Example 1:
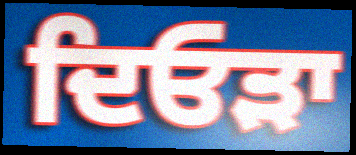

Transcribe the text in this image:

ਦਿਓੜਾ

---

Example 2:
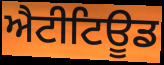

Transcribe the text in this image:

ਐਟੀਟਿਊਡ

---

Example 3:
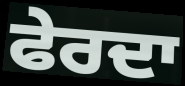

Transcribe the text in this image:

ਫੇਰਦਾ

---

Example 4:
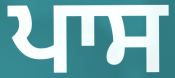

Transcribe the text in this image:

ਪਾਸ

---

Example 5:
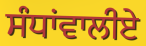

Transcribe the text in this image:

ਸੰਧਾਂਵਾਲੀਏ